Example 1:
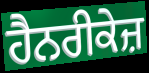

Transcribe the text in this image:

ਹੈਨਰੀਕੇਜ਼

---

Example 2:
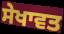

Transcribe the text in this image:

ਸੇਖਾਵਤ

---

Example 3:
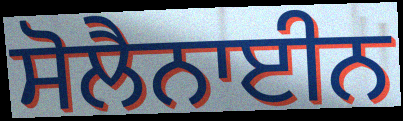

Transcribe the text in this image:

ਸੋਲੈਨਾਈਨ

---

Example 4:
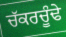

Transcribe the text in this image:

ਚੱਕਰਚੂੰਢੇ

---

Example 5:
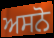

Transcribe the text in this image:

ਅਸਨੋ